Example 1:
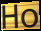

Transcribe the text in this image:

Ho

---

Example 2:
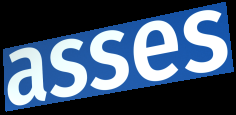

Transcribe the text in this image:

asses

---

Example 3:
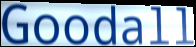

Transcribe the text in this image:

Goodall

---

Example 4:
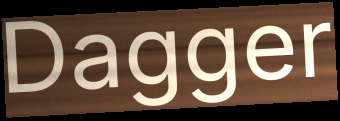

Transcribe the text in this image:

Dagger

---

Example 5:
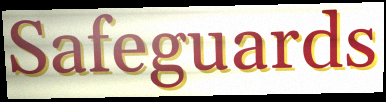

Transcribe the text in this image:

Safeguards